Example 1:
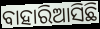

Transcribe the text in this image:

ବାହାରିଆସିଛି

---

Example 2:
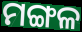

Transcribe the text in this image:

ମଙ୍ଗଳ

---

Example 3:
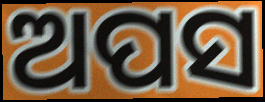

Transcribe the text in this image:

ଅପସ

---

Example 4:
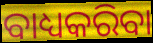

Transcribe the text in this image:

ବାଧ୍ୟକରିବା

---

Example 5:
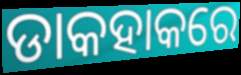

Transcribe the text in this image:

ଡାକହାକରେ